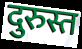
दुरुस्त